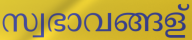
സ്വഭാവങ്ങള്